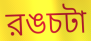
রঙচটা